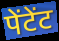
पेंटेंट